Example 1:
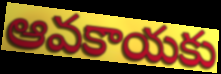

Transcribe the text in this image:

ఆవకాయకు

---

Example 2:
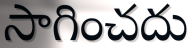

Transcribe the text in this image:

సాగించదు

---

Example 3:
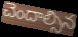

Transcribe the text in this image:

చెందాల్సిన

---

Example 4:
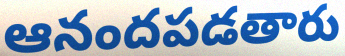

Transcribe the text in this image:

ఆనందపడతారు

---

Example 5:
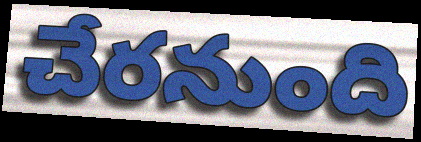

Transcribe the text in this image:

చేరనుంది